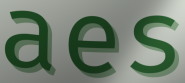
aes